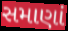
સમાણાં